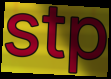
stp